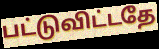
பட்டுவிட்டதே